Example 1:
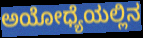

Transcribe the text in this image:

ಅಯೋಧ್ಯೆಯಲ್ಲಿನ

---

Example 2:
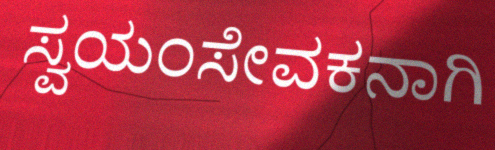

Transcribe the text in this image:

ಸ್ವಯಂಸೇವಕನಾಗಿ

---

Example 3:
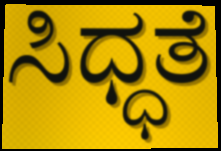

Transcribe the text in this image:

ಸಿಧ್ಧತೆ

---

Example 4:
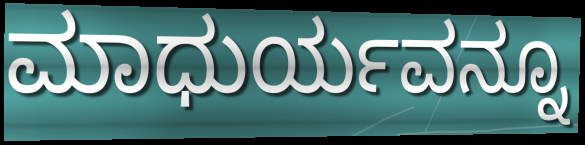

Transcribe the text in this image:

ಮಾಧುರ್ಯವನ್ನೂ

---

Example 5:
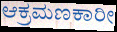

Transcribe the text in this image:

ಆಕ್ರಮಣಕಾರೀ